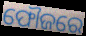
ଫୌଜରେ